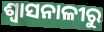
ଶ୍ୱାସନାଳୀରୁ